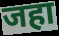
जहा